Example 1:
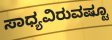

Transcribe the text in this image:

ಸಾಧ್ಯವಿರುವಷ್ಟೂ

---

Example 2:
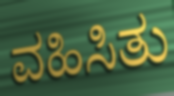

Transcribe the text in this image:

ವಹಿಸಿತು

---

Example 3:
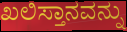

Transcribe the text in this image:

ಖಲಿಸ್ತಾನವನ್ನು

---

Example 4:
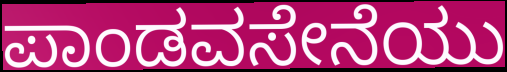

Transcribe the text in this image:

ಪಾಂಡವಸೇನೆಯು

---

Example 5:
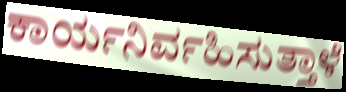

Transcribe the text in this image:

ಕಾರ್ಯನಿರ್ವಹಿಸುತ್ತಾಳೆ